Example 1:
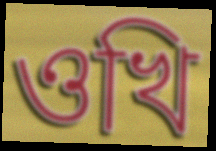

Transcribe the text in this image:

ওখি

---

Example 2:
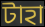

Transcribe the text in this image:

টাহা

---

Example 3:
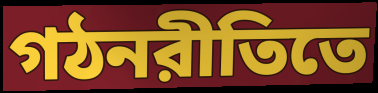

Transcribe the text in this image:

গঠনরীতিতে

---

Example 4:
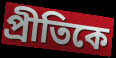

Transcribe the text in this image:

প্রীতিকে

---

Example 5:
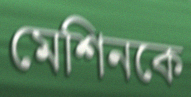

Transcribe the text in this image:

মেশিনকে